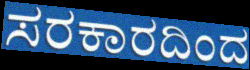
ಸರಕಾರದಿಂದ